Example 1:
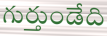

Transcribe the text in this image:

గుర్తుండేది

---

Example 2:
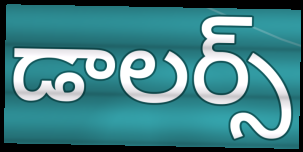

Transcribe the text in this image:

డాలర్స్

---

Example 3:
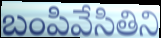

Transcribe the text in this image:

బంపివేసితిని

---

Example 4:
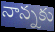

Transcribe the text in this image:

నాన్నకు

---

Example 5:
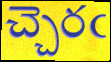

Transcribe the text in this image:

చ్చెరఁ